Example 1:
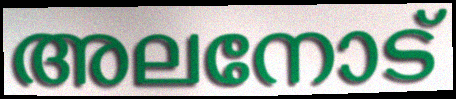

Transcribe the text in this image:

അലനോട്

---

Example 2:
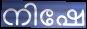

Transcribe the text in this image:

നിഷേ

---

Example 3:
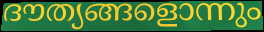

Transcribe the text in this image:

ദൗത്യങ്ങളൊന്നും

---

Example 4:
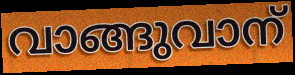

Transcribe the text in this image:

വാങ്ങുവാന്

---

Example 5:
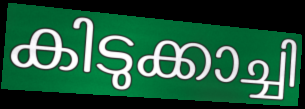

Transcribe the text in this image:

കിടുക്കാച്ചി